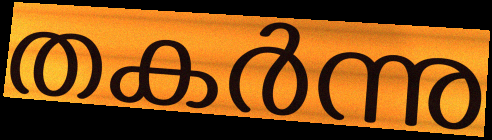
തകർന്നു